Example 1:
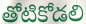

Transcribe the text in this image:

తోటికోడలి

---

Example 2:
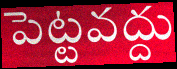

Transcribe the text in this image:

పెట్టవద్దు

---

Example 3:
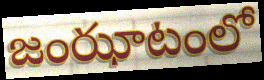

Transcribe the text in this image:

జంఝాటంలో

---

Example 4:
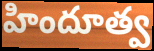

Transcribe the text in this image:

హిందూత్వ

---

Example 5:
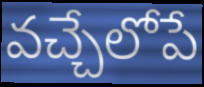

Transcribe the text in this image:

వచ్చేలోపే